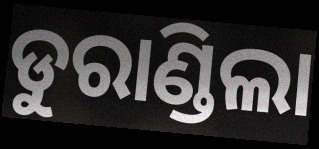
ଡୁରାଣ୍ଡିଲା